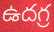
ఉదగ్ర